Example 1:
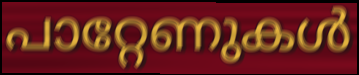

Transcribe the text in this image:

പാറ്റേണുകൾ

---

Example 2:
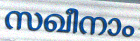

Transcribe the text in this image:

സഖീനാം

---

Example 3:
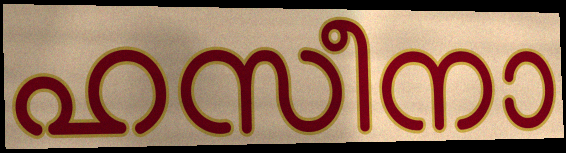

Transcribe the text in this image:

ഹസീനാ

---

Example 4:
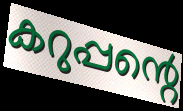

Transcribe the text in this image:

കറുപ്പന്റെ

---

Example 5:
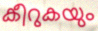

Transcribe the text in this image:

കീറുകയും